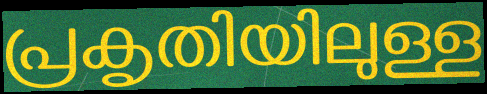
പ്രകൃതിയിലുള്ള